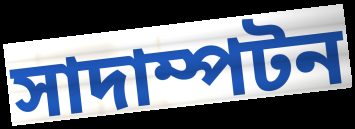
সাদাম্পটন